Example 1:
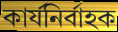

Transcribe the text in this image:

কাৰ্যনিৰ্বাহক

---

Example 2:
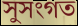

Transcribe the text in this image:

সুসংগত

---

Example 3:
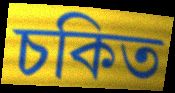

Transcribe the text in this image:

চকিত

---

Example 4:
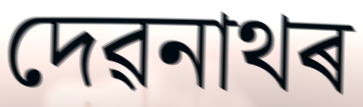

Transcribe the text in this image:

দেৱনাথৰ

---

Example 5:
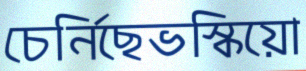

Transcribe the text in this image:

চেৰ্নিছেভস্কিয়ো